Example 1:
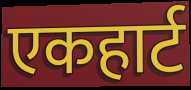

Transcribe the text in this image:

एकहार्ट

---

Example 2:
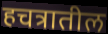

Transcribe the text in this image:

हचत्रातील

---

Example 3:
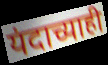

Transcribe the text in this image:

यंदाच्याही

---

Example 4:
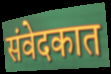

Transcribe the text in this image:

संवेदकात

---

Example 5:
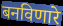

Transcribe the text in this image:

बनविणारे